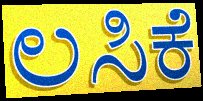
ಲಸಿಕೆ